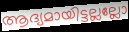
ആദ്യമായിട്ടല്ലല്ലോ